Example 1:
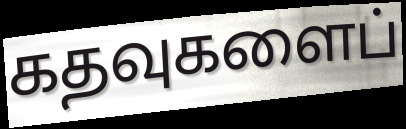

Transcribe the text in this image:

கதவுகளைப்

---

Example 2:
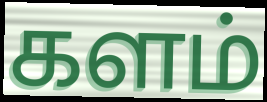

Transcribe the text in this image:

களம்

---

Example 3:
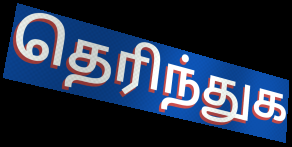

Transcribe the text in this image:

தெரிந்துக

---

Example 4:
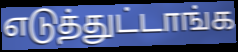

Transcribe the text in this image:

எடுத்துட்டாங்க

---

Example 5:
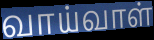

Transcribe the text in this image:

வாய்வாள்